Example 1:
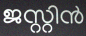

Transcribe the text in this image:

ജസ്റ്റിൻ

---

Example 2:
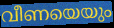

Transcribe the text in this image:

വീണയെയും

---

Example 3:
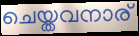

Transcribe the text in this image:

ചെയ്തവനാര്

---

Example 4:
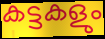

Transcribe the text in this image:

കട്ടകളും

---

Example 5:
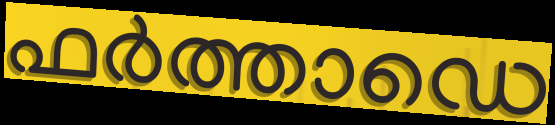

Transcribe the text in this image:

ഫർത്താഡെ